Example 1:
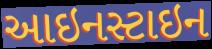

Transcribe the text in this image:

આઇનસ્ટાઇન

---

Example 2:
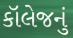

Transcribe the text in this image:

કૉલેજનું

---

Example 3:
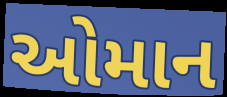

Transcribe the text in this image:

ઓમાન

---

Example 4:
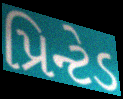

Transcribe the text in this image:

પ્રિન્ટેડ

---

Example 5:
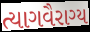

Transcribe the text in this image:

ત્યાગવૈરાગ્ય